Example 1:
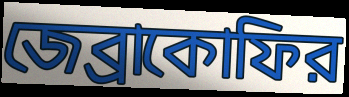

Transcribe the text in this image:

জেব্রাকোফির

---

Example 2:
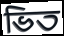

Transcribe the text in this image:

ভিত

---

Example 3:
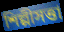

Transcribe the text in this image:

শিল্পীসত্তা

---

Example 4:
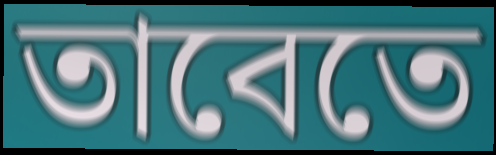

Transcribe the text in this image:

তাবেতে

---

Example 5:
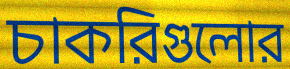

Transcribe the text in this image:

চাকরিগুলোর